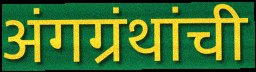
अंगग्रंथांची